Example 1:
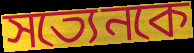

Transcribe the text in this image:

সত্যেনকে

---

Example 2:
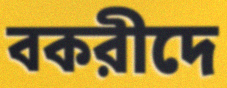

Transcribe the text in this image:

বকরীদে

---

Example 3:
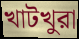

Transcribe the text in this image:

খাটখুরা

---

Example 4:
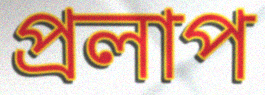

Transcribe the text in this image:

প্রলাপ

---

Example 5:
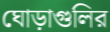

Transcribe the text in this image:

ঘোড়াগুলির